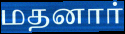
மதனார்